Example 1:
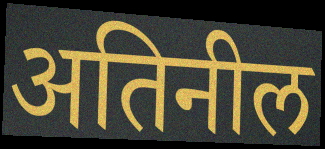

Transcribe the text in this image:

अतिनील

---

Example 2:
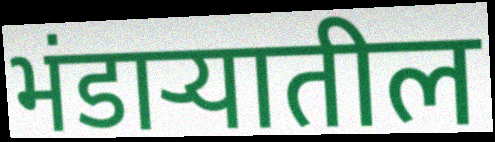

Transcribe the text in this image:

भंडाऱ्यातील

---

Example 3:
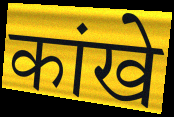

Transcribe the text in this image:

कांखे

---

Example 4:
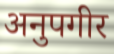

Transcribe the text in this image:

अनुपगीर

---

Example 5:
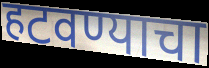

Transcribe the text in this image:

हटवण्याचा